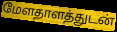
மேளதாளத்துடன்